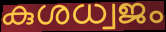
കുശധ്വജം